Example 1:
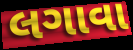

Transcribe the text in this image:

લગાવા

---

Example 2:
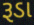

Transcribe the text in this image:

રૂડા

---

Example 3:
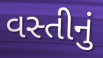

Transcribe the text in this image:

વસ્તીનું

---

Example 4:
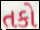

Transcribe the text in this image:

તકો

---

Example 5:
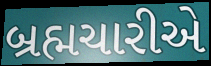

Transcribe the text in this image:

બ્રહ્મચારીએ